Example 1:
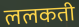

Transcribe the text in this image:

ललकती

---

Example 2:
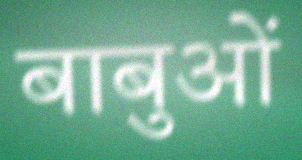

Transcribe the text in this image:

बाबुओं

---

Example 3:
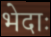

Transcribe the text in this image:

भेदाः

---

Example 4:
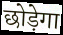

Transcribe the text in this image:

छोड़ेगा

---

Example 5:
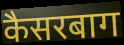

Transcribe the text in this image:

कैसरबाग